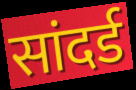
सांदर्ड